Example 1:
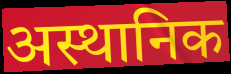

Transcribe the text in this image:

अस्थानिक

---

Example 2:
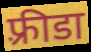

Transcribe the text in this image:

फ़्रीडा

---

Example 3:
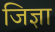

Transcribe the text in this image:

जिज्ञा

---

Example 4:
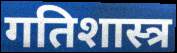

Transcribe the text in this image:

गतिशास्त्र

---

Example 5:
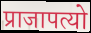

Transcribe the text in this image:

प्राजापत्यो